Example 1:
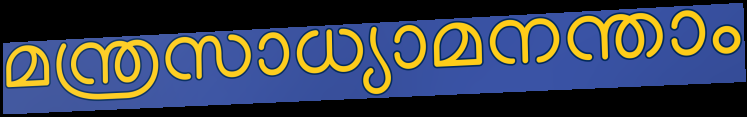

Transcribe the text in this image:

മന്ത്രസാധ്യാമനന്താം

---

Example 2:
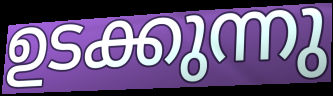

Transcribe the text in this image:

ഉടക്കുന്നു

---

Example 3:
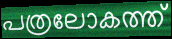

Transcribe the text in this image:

പത്രലോകത്ത്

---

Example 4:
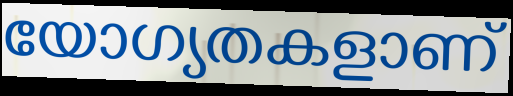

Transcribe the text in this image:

യോഗ്യതകളാണ്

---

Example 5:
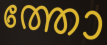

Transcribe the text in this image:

ത്തോ